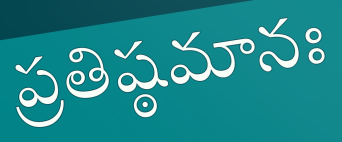
ప్రతిష్ఠమానః